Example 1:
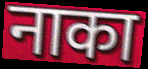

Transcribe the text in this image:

नाका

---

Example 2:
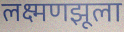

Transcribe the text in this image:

लक्ष्मणझूला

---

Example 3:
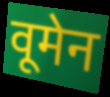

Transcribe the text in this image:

वूमेन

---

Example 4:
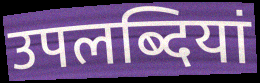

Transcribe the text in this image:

उपलब्दियां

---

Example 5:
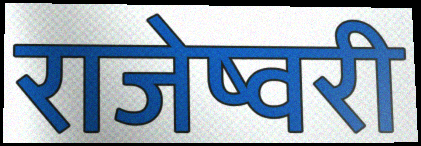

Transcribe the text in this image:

राजेष्वरी